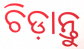
ଚିଡ଼ାନ୍ତୁ